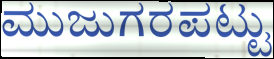
ಮುಜುಗರಪಟ್ಟು